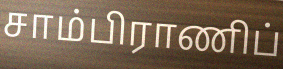
சாம்பிராணிப்